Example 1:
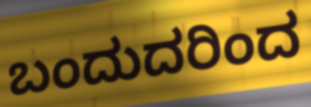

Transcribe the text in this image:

ಬಂದುದರಿಂದ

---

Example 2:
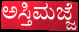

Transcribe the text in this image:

ಅಸ್ತಿಮಜ್ಜೆ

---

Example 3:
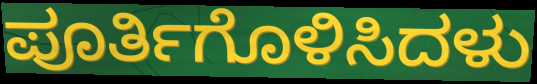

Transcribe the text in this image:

ಪೂರ್ತಿಗೊಳಿಸಿದಳು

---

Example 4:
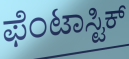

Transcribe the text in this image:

ಫೆಂಟಾಸ್ಟಿಕ್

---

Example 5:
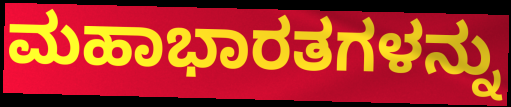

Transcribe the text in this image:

ಮಹಾಭಾರತಗಳನ್ನು